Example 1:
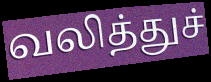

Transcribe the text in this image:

வலித்துச்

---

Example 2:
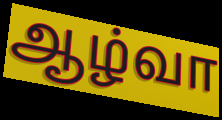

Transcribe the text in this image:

ஆழ்வா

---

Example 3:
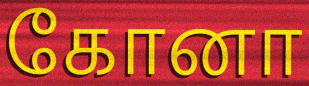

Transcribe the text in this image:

கோனா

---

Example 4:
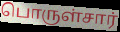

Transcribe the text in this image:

பொருள்சார்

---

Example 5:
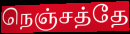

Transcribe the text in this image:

நெஞ்சத்தே